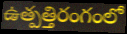
ఉత్పత్తిరంగంలో